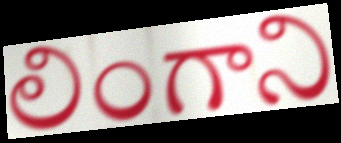
లింగాని